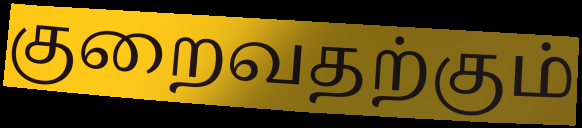
குறைவதற்கும்